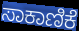
ಸಾಕಾಣಿಕೆ